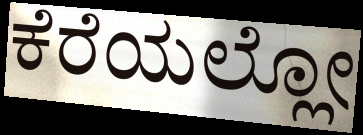
ಕೆರೆಯಲ್ಲೋ